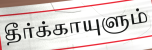
தீர்க்காயுளும்